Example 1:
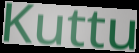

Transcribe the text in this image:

Kuttu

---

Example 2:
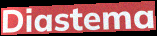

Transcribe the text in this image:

Diastema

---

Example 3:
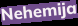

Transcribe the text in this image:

Nehemija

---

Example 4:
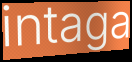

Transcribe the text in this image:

intaga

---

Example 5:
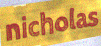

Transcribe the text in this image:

nicholas